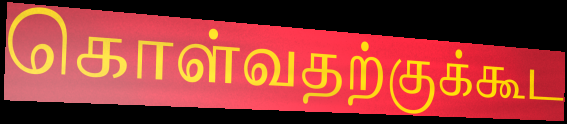
கொள்வதற்குக்கூட